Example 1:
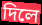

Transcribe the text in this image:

দিলে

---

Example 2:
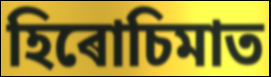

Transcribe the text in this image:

হিৰোচিমাত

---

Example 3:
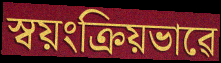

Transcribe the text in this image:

স্বয়ংক্ৰিয়ভাৱে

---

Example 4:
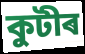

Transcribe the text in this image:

কুটীৰ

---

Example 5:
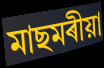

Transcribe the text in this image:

মাছমৰীয়া